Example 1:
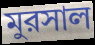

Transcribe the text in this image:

মুরসাল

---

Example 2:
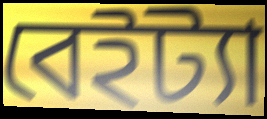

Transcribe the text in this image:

বেইট্যা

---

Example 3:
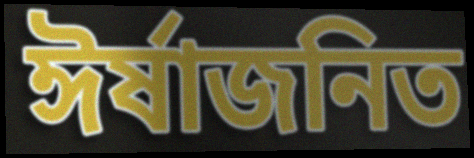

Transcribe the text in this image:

ঈর্ষাজনিত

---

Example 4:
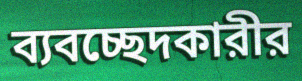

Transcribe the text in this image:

ব্যবচ্ছেদকারীর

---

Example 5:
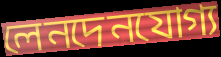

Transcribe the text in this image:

লেনদেনযোগ্য